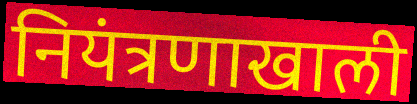
नियंत्रणाखाली